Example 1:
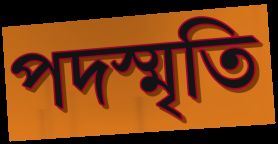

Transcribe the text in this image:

পদস্মৃতি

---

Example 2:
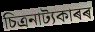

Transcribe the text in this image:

চিত্ৰনাট্যকাৰৰ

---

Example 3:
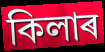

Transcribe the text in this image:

কিলাৰ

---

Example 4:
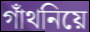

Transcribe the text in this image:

গাঁথনিয়ে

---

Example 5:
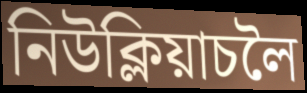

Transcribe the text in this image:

নিউক্লিয়াচলৈ